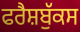
ਫਰੈਸ਼ਬੁੱਕਸ